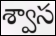
శ్వాస